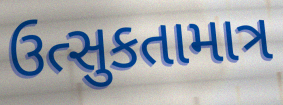
ઉત્સુકતામાત્ર